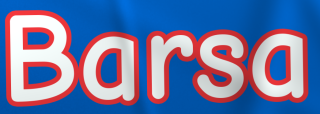
Barsa